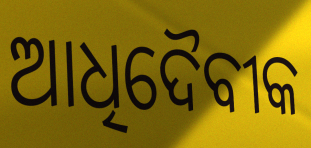
ଆଧିଦୈବୀକ